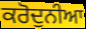
ਕਰੋਦੁਨੀਆ